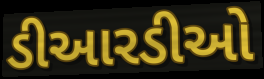
ડીઆરડીઓ